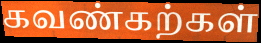
கவண்கற்கள்